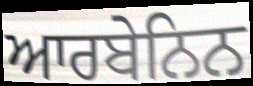
ਆਰਬੇਨਿਨ